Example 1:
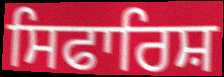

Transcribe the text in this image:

ਸਿਫਾਰਿਸ਼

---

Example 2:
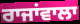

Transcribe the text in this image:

ਰਾਜਾਂਵਾਲਾ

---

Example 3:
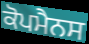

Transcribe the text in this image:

ਕੋਪਮੈਨਸ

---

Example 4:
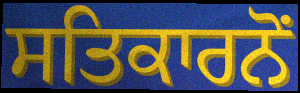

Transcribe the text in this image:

ਸਤਿਕਾਰਨੋਂ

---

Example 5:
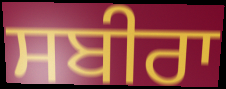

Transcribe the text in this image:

ਸਬੀਰਾ